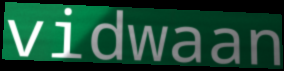
vidwaan